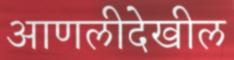
आणलीदेखील